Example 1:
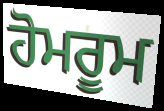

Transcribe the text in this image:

ਹੋਮਰੂਮ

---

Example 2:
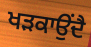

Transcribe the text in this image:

ਖੜਕਾਉਂਦੈ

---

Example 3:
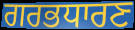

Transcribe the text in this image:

ਗਰਭਧਾਰਣ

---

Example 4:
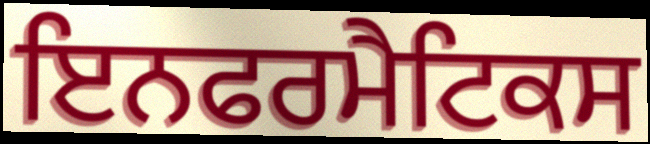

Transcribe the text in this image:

ਇਨਫਰਮੈਟਿਕਸ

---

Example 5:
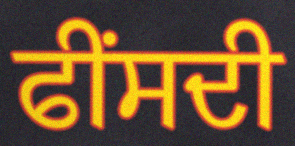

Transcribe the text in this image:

ਫੀਂਸਦੀ